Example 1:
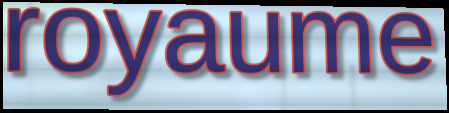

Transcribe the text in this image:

royaume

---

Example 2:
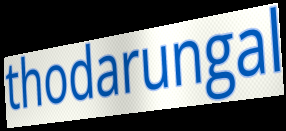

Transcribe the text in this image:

thodarungal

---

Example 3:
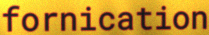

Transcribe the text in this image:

fornication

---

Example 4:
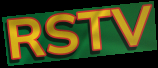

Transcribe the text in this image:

RSTV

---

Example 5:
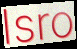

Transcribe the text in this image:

Isro